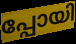
പ്പോയി